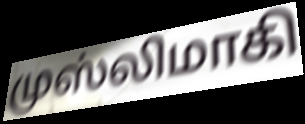
முஸ்லிமாகி